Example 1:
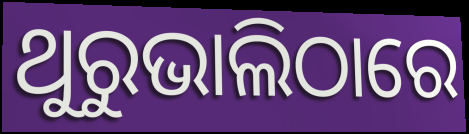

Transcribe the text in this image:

ଥୁରୁଭାଲିଠାରେ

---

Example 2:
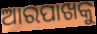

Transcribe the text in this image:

ଆରପାଖକୁ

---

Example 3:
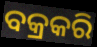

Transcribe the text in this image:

ବକ୍ରକରି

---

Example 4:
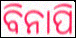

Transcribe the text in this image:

ବିନାପି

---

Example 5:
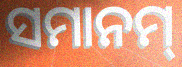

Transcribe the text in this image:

ସମାନମ୍